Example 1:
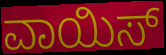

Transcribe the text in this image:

ವಾಯಿಸ್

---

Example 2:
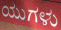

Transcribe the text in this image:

ಯುಗಳು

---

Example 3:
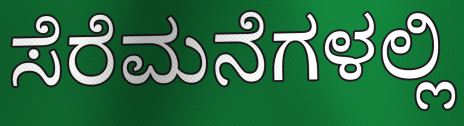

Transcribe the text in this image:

ಸೆರೆಮನೆಗಳಲ್ಲಿ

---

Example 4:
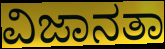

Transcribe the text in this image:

ವಿಜಾನತಾ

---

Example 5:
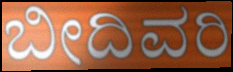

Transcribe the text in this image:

ಬೀದಿವರಿ